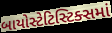
બાયોસ્ટેટિસ્ટિક્સમાં